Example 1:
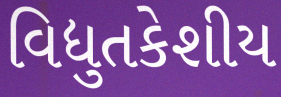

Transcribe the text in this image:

વિદ્યુતકેશીય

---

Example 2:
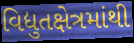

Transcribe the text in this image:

વિદ્યુતક્ષેત્રમાંથી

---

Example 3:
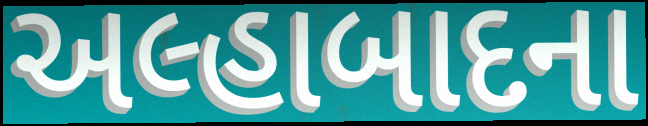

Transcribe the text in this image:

અલ્હાબાદના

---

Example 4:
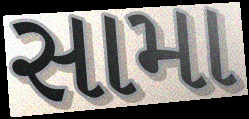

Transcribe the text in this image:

સામા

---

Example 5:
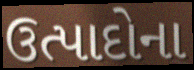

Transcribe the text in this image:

ઉત્પાદોના